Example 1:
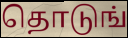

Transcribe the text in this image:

தொடுங்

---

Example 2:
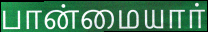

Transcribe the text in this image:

பான்மையார்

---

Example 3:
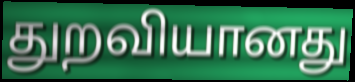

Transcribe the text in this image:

துறவியானது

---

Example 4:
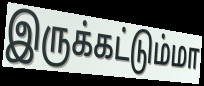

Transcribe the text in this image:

இருக்கட்டும்மா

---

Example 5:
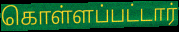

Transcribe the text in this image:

கொள்ளப்பட்டார்